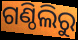
ଗଣ୍ଠିଲିରୁ